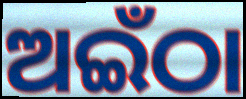
ଅଇଁଠା